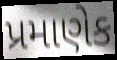
પ્રમાણેક